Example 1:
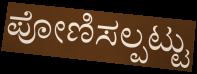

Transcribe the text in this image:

ಪೋಣಿಸಲ್ಪಟ್ಟು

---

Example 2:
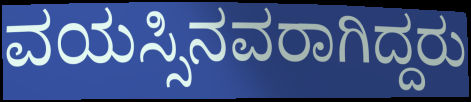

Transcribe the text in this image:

ವಯಸ್ಸಿನವರಾಗಿದ್ದರು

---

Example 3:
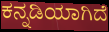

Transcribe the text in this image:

ಕನ್ನಡಿಯಾಗಿದೆ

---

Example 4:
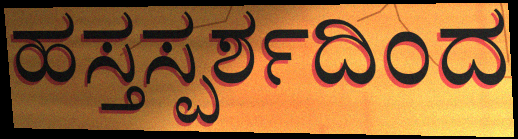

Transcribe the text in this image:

ಹಸ್ತಸ್ಪರ್ಶದಿಂದ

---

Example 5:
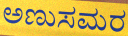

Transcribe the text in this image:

ಅಣುಸಮರ